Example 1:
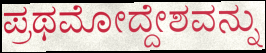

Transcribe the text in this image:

ಪ್ರಥಮೋದ್ದೇಶವನ್ನು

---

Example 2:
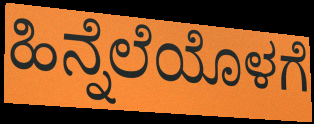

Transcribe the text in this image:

ಹಿನ್ನೆಲೆಯೊಳಗೆ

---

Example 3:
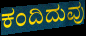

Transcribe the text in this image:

ಕಂದಿದುವು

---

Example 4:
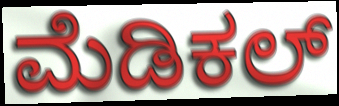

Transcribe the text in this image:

ಮೆಡಿಕಲ್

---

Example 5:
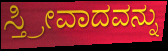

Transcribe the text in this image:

ಸ್ತ್ರೀವಾದವನ್ನು